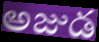
అజుడ